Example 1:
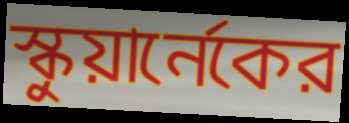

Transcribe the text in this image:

স্কুয়ার্নেকের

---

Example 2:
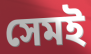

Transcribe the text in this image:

সেমই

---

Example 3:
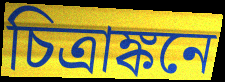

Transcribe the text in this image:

চিত্রাঙ্কনে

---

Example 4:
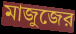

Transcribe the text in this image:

মাজুজের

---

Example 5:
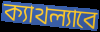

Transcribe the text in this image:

ক্যাথল্যাবে